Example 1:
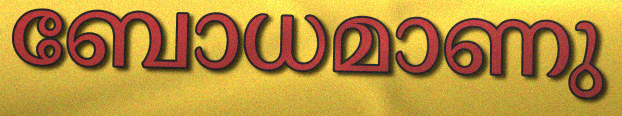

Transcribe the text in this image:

ബോധമാണു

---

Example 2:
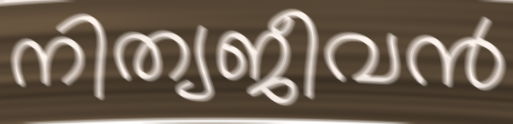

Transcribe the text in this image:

നിത്യജീവൻ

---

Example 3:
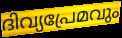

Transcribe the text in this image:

ദിവ്യപ്രേമവും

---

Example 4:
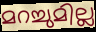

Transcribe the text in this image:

മറച്ചുമില്ല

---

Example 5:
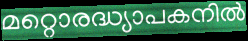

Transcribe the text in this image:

മറ്റൊരദ്ധ്യാപകനിൽ